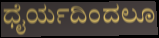
ಧೈರ್ಯದಿಂದಲೂ